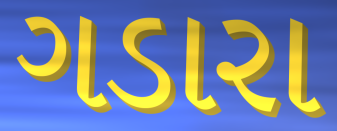
ગડારા